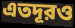
এতদূরও